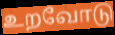
உறவோடு